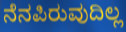
ನೆನಪಿರುವುದಿಲ್ಲ